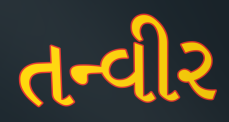
તન્વીર